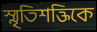
স্মৃতিশক্তিকে